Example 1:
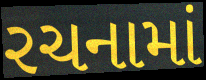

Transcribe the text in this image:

રચનામાં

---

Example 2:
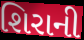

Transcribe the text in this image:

શિરાની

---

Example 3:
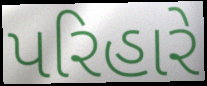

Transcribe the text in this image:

પરિહારે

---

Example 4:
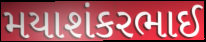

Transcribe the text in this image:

મયાશંકરભાઈ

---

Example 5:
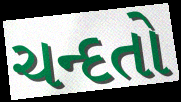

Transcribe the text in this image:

ચન્દતો